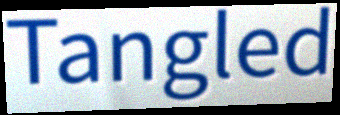
Tangled